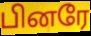
பினரே